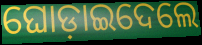
ଘୋଡ଼ାଇଦେଲେ